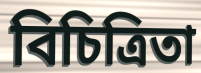
বিচিত্রিতা